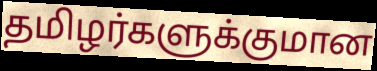
தமிழர்களுக்குமான